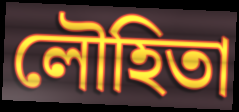
লৌহিতা